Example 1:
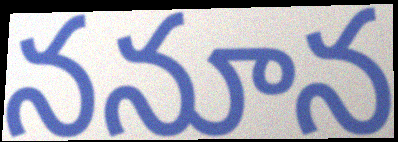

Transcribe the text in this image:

ననూన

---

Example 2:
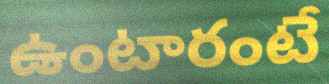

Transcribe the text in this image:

ఉంటారంటే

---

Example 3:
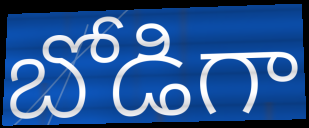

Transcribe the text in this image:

బోడిగా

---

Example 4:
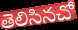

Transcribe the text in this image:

తెలిసినచో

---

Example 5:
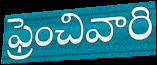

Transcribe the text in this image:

ఫ్రెంచివారి